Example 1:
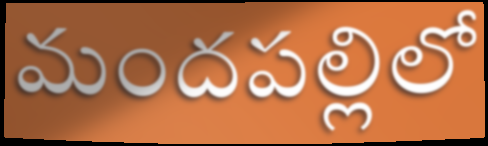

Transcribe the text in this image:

మందపల్లిలో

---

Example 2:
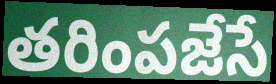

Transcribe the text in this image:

తరింపజేసే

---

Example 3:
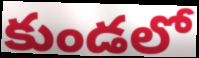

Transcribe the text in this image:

కుండలో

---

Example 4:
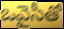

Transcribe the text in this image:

ఒవైసీతో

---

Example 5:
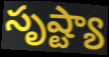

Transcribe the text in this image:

సృష్ట్యా